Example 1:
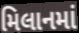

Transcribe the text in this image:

મિલાનમાં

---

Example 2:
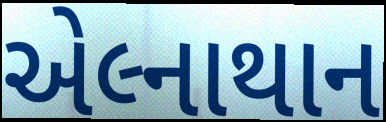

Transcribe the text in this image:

એલ્નાથાન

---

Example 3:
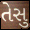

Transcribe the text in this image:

તેસુ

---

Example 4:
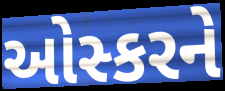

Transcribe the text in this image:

ઓસ્કરને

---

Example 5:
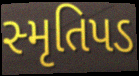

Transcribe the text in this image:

સ્મૃતિપડ